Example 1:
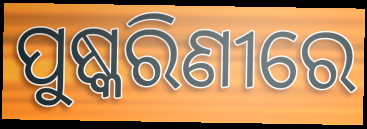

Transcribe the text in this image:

ପୁଷ୍କରିଣୀରେ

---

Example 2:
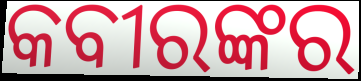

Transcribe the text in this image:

କବୀରଙ୍କର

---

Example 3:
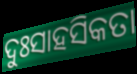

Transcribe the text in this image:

ଦୁଃସାହସିକତା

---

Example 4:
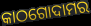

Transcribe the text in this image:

କାଠଗୋଦାମର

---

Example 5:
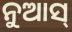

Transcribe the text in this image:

ନୁଆସ୍